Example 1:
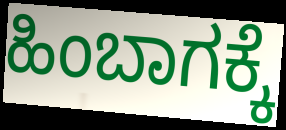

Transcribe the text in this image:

ಹಿಂಬಾಗಕ್ಕೆ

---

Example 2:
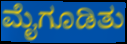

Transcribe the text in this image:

ಮೈಗೂಡಿತು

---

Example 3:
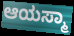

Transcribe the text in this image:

ಆಯಸ್ಮಾ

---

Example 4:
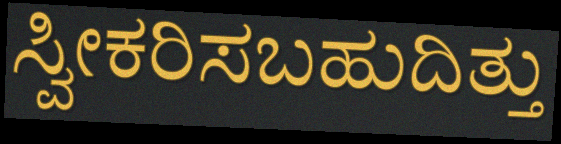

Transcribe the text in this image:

ಸ್ವೀಕರಿಸಬಹುದಿತ್ತು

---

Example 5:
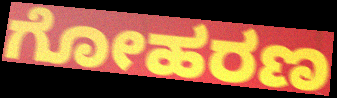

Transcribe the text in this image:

ಗೋಹರಣ